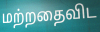
மற்றதைவிட